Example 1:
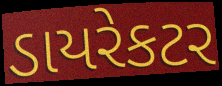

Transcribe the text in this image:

ડાયરેકટર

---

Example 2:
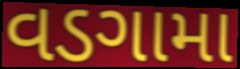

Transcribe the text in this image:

વડગામા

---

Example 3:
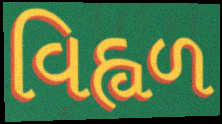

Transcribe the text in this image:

વિહ્વળ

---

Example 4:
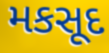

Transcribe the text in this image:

મકસૂદ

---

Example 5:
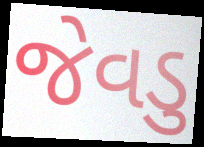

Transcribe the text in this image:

જેવડુ